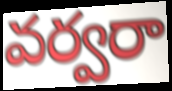
వర్వరా